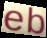
eb